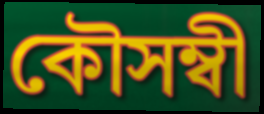
কৌসম্বী